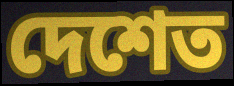
দেশেত